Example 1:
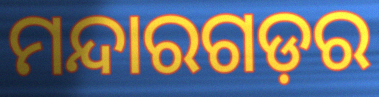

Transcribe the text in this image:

ମନ୍ଦାରଗଡ଼ର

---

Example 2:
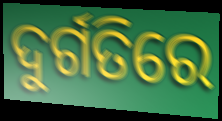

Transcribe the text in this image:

ଦୁର୍ଗତିରେ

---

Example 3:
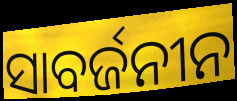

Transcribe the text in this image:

ସାବର୍ଜନୀନ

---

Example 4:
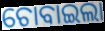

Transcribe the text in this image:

ଚୋବାଇଲା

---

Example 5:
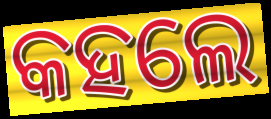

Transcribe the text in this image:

କହଲେ